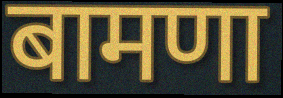
बामणा